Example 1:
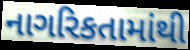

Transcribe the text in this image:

નાગરિકતામાંથી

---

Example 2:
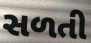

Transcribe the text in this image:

સળતી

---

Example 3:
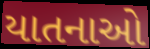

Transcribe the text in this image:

યાતનાઓ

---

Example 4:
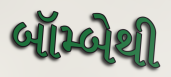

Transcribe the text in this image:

બૉમ્બેથી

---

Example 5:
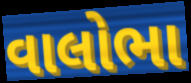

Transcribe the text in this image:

વાલોભા